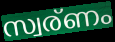
സ്വര്ണം